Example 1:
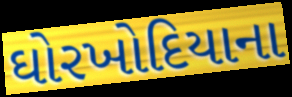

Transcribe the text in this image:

ઘોરખોદિયાના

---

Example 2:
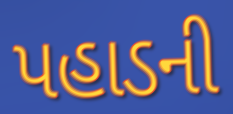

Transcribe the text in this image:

પહાડની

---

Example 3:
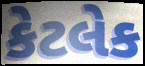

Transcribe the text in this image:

કેટલેક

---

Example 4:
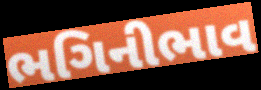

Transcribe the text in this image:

ભગિનીભાવ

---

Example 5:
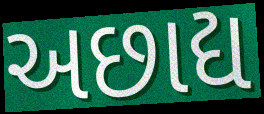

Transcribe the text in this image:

અછાદ્ય